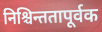
निश्चिन्ततापूर्वक